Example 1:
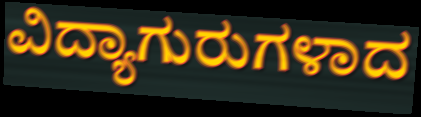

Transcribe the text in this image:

ವಿದ್ಯಾಗುರುಗಳಾದ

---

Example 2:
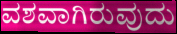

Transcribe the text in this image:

ವಶವಾಗಿರುವುದು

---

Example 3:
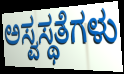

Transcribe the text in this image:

ಅಸ್ವಸ್ಥತೆಗಳು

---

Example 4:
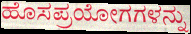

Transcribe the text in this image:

ಹೊಸಪ್ರಯೋಗಗಳನ್ನು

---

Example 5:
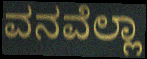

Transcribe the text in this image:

ವನವೆಲ್ಲಾ